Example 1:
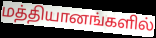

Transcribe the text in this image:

மத்தியானங்களில்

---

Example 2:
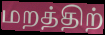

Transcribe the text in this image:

மறத்திற்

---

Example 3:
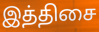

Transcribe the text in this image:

இத்திசை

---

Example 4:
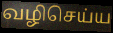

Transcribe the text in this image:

வழிசெய்ய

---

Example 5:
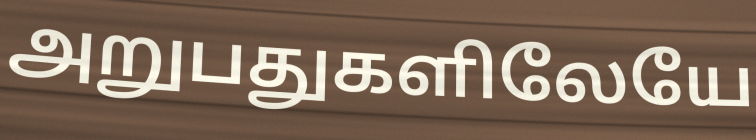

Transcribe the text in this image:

அறுபதுகளிலேயே